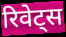
रिवेट्स